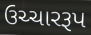
ઉચ્ચારરૂપ